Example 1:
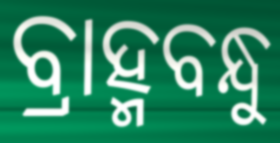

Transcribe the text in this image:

ବ୍ରାହ୍ମବନ୍ଧୁ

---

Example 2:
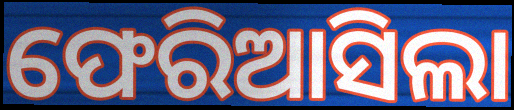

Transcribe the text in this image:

ଫେରିଆସିଲା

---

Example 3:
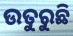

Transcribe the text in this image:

ଉତୁରୁଛି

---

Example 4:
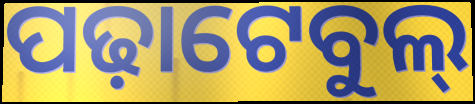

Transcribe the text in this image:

ପଢ଼ାଟେବୁଲ୍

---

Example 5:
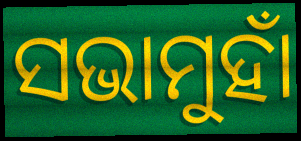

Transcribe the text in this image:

ସଭାମୁହାଁ